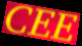
CEE